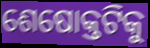
ଶେଷୋକ୍ତଟିକୁ